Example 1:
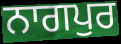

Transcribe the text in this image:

ਨਾਗਪੁਰ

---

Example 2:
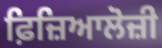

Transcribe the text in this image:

ਫ਼ਿਜ਼ਿਆਲੋਜ਼ੀ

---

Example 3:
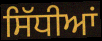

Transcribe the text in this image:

ਸਿੱਧੀਆਂ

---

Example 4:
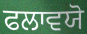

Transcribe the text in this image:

ਫਲਾਵਯੋ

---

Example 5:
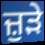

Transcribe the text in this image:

ਜ਼ੁੜੇ